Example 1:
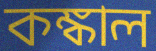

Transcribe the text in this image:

কঙ্কাল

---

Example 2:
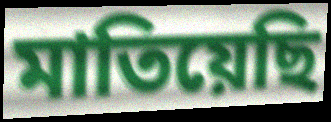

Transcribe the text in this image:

মাতিয়েছি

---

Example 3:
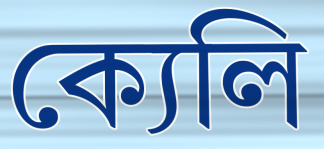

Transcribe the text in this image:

ক্যেলি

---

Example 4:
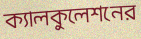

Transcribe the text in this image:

ক্যালকুলেশনের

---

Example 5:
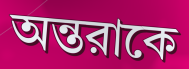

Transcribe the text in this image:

অন্তরাকে